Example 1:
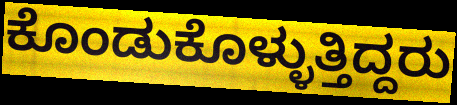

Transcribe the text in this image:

ಕೊಂಡುಕೊಳ್ಳುತ್ತಿದ್ದರು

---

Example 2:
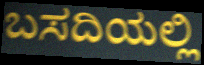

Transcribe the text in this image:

ಬಸದಿಯಲ್ಲಿ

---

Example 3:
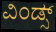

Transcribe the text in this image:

ವಿಂಡ್ಸ್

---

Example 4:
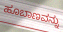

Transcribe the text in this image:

ಹೂಬಾಣವನ್ನು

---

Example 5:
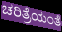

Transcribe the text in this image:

ಚರಿತ್ರೆಯಂತೆ